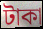
টাকা